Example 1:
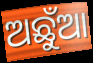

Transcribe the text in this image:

ଅଛୁଁଆ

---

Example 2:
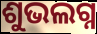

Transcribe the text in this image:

ଶୁଭଲଗ୍ନ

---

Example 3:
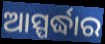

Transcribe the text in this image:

ଆସ୍ପର୍ଦ୍ଧାର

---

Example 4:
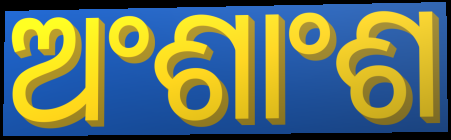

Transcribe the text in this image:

ଅଂଶାଂଶ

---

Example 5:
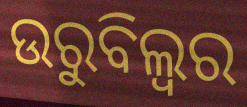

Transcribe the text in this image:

ଉରୁବିଲ୍ଵର